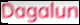
Dagalun